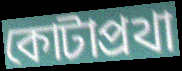
কোটাপ্রথা